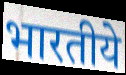
भारतीये